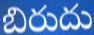
బిరుదు